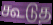
கூடுத